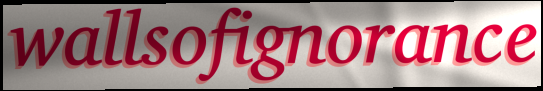
wallsofignorance